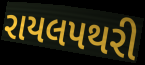
રાયલપથરી